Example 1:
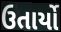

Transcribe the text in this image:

ઉતાર્યો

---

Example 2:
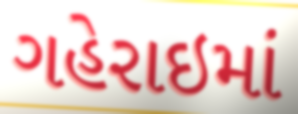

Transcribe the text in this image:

ગહેરાઇમાં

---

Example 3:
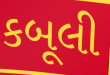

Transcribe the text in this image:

કબૂલી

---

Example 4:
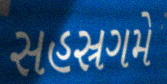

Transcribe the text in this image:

સહસ્રગમે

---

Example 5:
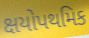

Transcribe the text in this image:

ક્ષયોપથમિક